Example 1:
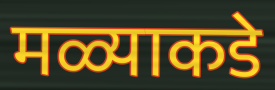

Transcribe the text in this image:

मळ्याकडे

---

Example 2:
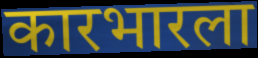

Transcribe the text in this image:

कारभारला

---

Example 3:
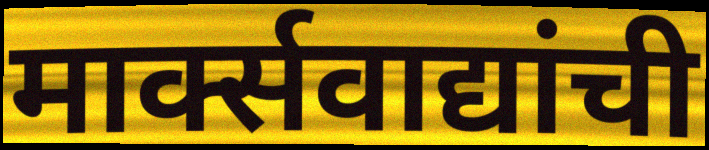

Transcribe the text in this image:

मार्क्सवाद्यांची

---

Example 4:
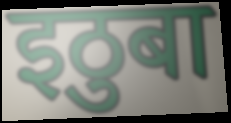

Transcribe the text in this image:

इठुबा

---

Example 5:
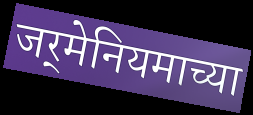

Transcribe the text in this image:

जर्मेनियमाच्या